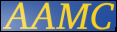
AAMC